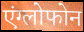
एंग्लोफोन